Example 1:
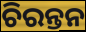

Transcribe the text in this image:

ଚିରନ୍ତନ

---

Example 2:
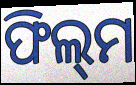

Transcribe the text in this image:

ଫିଲ୍‌ମ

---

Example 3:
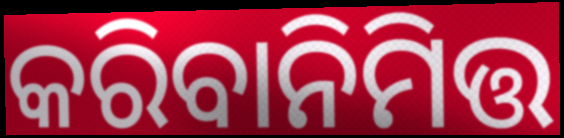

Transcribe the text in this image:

କରିବାନିମିତ୍ତ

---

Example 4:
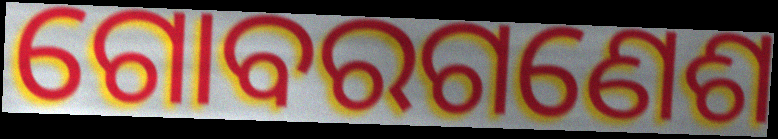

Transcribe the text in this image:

ଗୋବରଗଣେଶ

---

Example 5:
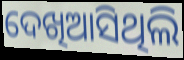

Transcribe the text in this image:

ଦେଖିଆସିଥିଲି